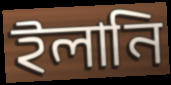
ইলানি